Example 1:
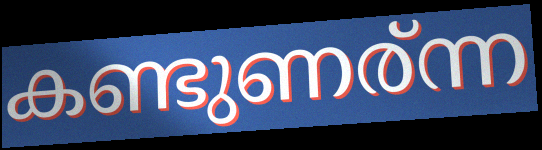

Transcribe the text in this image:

കണ്ടുണര്ന്ന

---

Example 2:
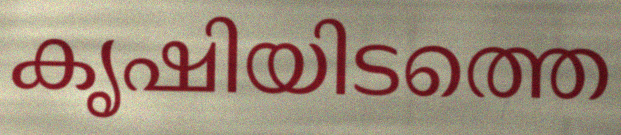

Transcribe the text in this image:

കൃഷിയിടത്തെ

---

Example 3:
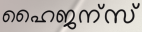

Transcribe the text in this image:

ഹൈജന്സ്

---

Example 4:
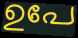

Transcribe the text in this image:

ഉപേ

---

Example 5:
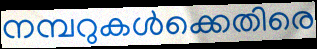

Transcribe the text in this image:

നമ്പറുകൾക്കെതിരെ